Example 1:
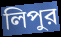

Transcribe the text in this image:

লিপুর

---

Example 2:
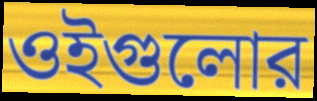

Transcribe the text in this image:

ওইগুলোর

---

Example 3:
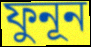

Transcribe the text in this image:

ফুনূন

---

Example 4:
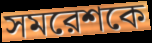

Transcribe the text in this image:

সমরেশকে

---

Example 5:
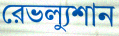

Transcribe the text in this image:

রেভল্যুশান